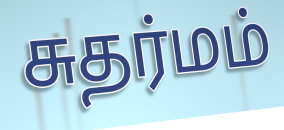
சுதர்மம்